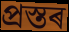
প্ৰস্তৰ